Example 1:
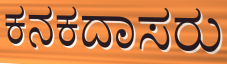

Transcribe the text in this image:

ಕನಕದಾಸರು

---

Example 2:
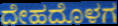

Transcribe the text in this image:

ದೇಹದೊಳಗ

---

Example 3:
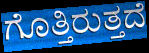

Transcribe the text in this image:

ಗೊತ್ತಿರುತ್ತದೆ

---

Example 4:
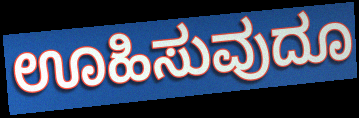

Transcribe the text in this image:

ಊಹಿಸುವುದೂ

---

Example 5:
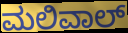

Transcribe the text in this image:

ಮಲಿವಾಲ್